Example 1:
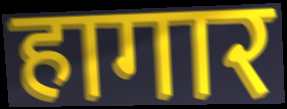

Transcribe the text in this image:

हागार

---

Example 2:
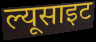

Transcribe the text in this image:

ल्यूसाइट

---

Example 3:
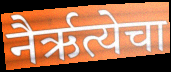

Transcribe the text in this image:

नैर्ऋत्येचा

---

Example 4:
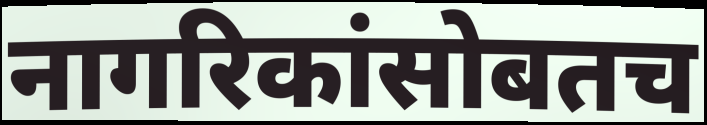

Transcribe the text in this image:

नागरिकांसोबतच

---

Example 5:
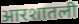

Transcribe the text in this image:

आरशातली